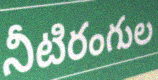
నీటిరంగుల